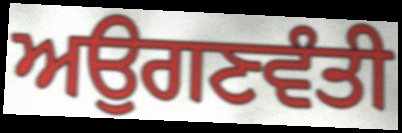
ਅਉਗਣਵੰਤੀ